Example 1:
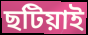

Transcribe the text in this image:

ছটিয়াই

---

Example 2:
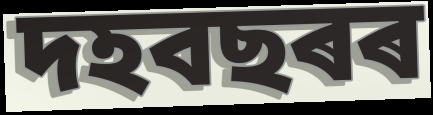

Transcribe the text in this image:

দহবছৰৰ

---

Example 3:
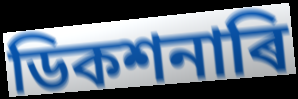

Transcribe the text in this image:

ডিকশনাৰি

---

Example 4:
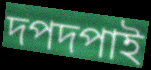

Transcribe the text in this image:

দপদপাই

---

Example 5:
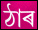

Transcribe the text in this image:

ঠাৰ